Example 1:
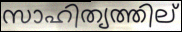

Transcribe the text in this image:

സാഹിത്യത്തില്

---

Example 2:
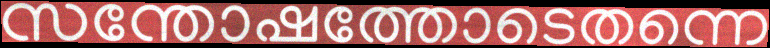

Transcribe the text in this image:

സന്തോഷത്തോടെതന്നെ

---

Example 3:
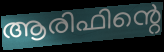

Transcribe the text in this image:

ആരിഫിന്റെ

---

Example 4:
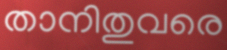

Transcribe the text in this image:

താനിതുവരെ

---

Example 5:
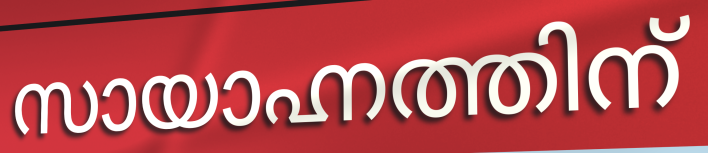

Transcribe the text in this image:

സായാഹ്നത്തിന്